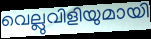
വെല്ലുവിളിയുമായി